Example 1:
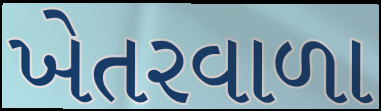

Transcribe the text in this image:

ખેતરવાળા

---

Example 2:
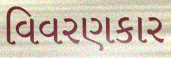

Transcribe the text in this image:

વિવરણકાર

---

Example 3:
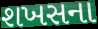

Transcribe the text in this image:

શખસના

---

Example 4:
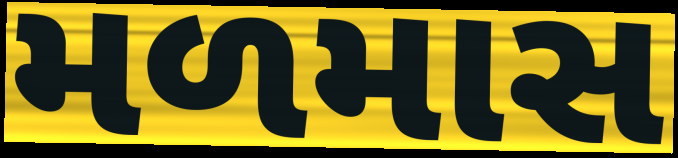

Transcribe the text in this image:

મળમાસ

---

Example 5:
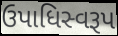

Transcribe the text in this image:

ઉપાધિસ્વરૂપ